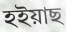
হইয়াছ